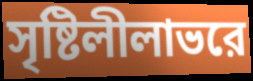
সৃষ্টিলীলাভরে